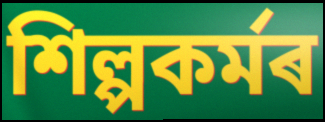
শিল্পকৰ্মৰ